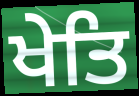
ਖੇਤਿ